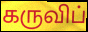
கருவிப்